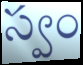
స్వం